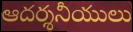
ఆదర్శనీయులు